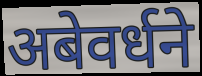
अबेवर्धने